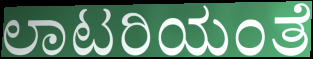
ಲಾಟರಿಯಂತೆ